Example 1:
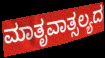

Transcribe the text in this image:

ಮಾತೃವಾತ್ಸಲ್ಯದ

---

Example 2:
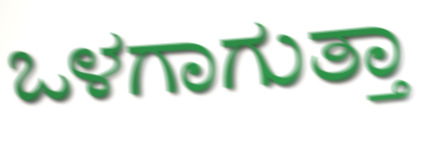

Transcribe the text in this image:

ಒಳಗಾಗುತ್ತಾ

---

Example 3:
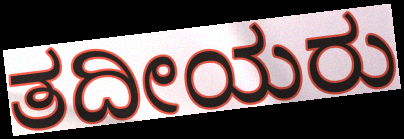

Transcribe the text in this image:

ತದೀಯರು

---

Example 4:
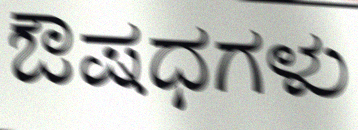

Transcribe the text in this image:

ಔಷಧಗಳು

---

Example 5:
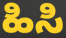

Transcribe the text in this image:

ಹಿಸಿ